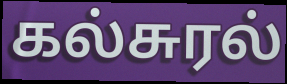
கல்சுரல்